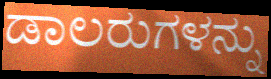
ಡಾಲರುಗಳನ್ನು